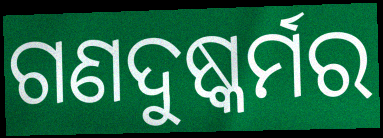
ଗଣଦୁଷ୍କର୍ମର